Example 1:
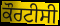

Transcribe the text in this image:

ਕੌਰਟੀਸੀ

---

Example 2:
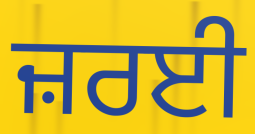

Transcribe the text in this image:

ਜ਼ਰਈ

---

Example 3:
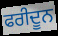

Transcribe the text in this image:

ਫਰੀਦੂਨ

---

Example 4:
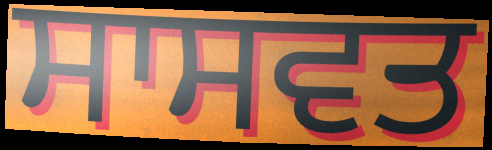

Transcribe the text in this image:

ਸਾਸਵਤ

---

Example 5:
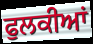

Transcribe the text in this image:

ਫੁਲਕੀਆਂ